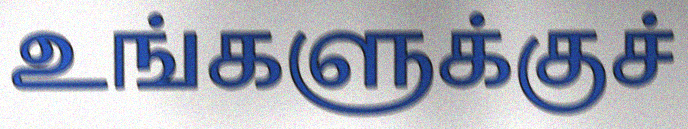
உங்களுக்குச்